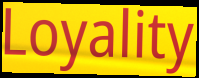
Loyality